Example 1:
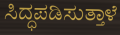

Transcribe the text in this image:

ಸಿದ್ಧಪಡಿಸುತ್ತಾಳೆ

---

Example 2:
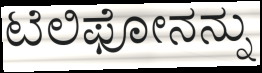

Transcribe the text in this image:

ಟೆಲಿಫೋನನ್ನು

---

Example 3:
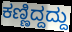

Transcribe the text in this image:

ಕಣ್ಣಿದ್ದದ್ದು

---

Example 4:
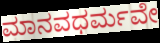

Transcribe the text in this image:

ಮಾನವಧರ್ಮವೇ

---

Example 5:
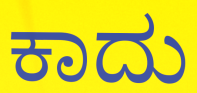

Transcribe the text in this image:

ಕಾದು